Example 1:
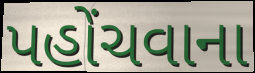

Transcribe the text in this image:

પહોંચવાના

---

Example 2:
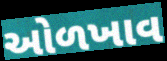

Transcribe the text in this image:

ઓળખાવ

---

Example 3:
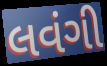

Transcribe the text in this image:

લવંગી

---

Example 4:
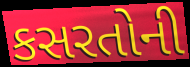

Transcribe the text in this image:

કસરતોની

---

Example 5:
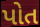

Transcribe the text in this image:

પોત